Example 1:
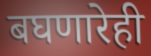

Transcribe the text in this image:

बघणारेही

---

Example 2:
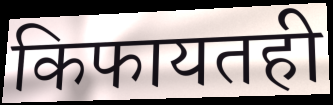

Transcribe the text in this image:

किफायतही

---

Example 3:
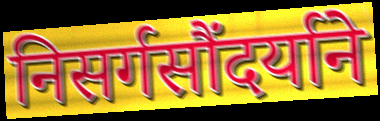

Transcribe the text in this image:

निसर्गसौंदर्याने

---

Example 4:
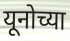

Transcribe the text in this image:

यूनोच्या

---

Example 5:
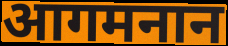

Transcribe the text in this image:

आगमनान